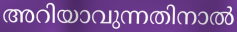
അറിയാവുന്നതിനാൽ